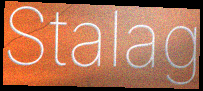
Stalag